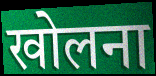
खोलना